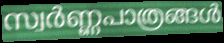
സ്വർണ്ണപാത്രങ്ങൾ